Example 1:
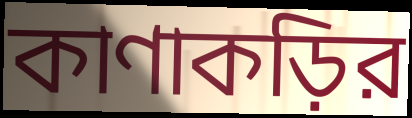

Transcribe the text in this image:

কাণাকড়ির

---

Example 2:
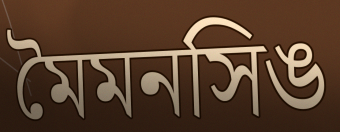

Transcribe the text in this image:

মৈমনসিঙ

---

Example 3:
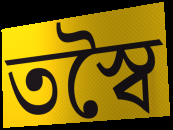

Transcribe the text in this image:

তস্বৈ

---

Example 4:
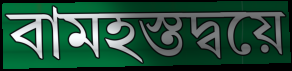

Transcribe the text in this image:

বামহস্তদ্বয়ে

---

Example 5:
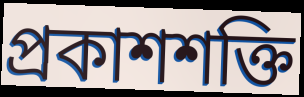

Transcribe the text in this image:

প্রকাশশক্তি